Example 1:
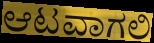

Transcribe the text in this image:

ಆಟವಾಗಲಿ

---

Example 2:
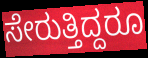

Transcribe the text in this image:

ಸೇರುತ್ತಿದ್ದರೂ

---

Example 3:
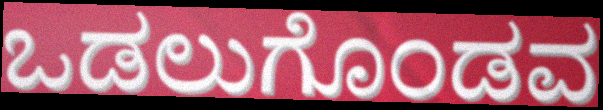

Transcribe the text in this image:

ಒಡಲುಗೊಂಡವ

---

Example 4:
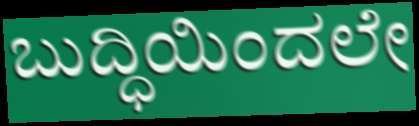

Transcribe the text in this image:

ಬುದ್ಧಿಯಿಂದಲೇ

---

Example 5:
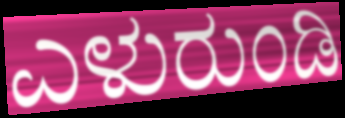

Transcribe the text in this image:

ಎಳುರುಂಡಿ